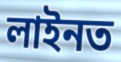
লাইনত